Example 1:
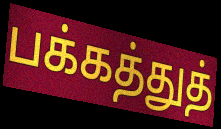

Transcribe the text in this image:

பக்கத்துத்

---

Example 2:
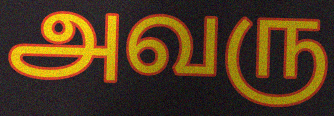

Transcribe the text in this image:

அவரு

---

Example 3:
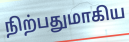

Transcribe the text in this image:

நிற்பதுமாகிய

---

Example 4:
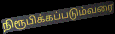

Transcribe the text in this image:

நிரூபிக்கப்படும்வரை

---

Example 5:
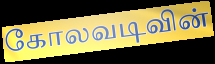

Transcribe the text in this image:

கோலவடிவின்